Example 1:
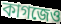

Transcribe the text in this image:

কাগজেও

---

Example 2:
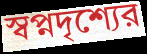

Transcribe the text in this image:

স্বপ্নদৃশ্যের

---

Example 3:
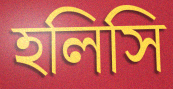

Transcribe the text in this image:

হলিসি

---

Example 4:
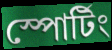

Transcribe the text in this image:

স্পোর্টিং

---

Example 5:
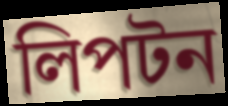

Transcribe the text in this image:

লিপটন